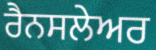
ਰੈਨਸਲੇਅਰ